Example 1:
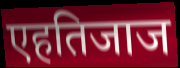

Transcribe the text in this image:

एहतिजाज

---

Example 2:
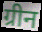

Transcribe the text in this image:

ग्रीन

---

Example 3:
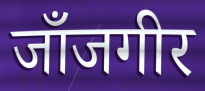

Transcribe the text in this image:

जाँजगीर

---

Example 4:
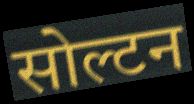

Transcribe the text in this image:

सोल्टन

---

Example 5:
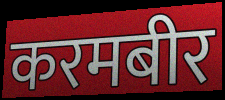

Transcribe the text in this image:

करमबीर